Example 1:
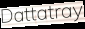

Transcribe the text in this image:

Dattatray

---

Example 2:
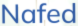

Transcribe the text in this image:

Nafed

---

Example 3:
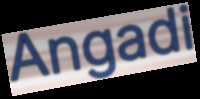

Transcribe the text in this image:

Angadi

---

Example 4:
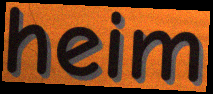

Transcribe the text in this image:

heim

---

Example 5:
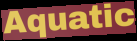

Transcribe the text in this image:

Aquatic